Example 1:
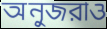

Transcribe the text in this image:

অনুজরাও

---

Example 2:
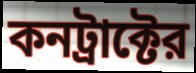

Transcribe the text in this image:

কনট্রাক্টের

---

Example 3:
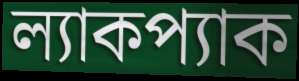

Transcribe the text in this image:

ল্যাকপ্যাক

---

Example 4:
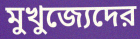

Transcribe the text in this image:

মুখুজ্যেদের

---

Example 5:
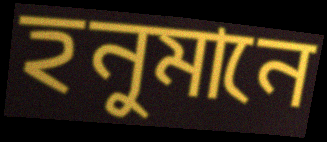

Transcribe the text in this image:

হনুমানে